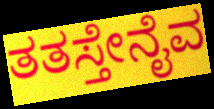
ತತಸ್ತೇನೈವ